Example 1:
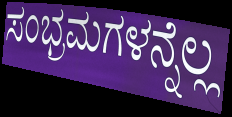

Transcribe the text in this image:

ಸಂಭ್ರಮಗಳನ್ನೆಲ್ಲ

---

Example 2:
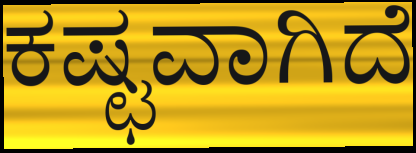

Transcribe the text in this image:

ಕಷ್ಟವಾಗಿದೆ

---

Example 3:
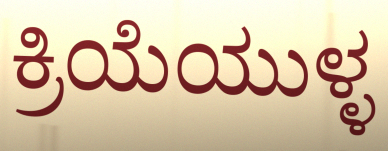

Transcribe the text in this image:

ಕ್ರಿಯೆಯುಳ್ಳ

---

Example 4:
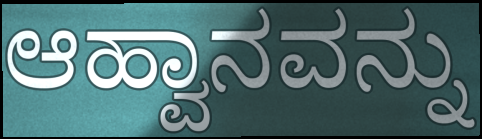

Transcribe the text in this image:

ಆಹ್ವಾನವನ್ನು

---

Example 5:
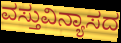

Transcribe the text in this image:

ವಸ್ತುವಿನ್ಯಾಸದ